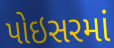
પોઇસરમાં